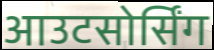
आउटसोर्सिंग